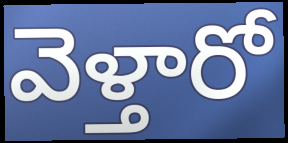
వెళ్తారో